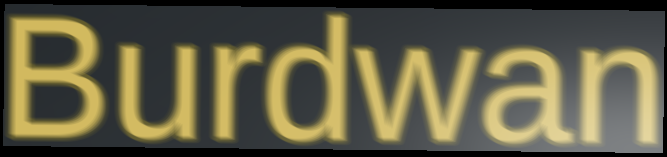
Burdwan